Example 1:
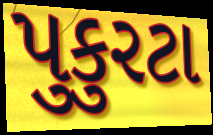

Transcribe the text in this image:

પુકુરટા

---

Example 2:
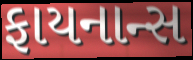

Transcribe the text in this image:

ફાયનાન્સ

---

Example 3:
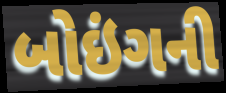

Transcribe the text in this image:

બોઇંગની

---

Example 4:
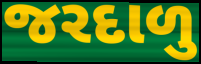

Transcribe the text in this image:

જરદાળુ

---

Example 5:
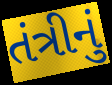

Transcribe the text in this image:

તંત્રીનું